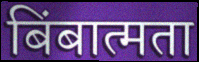
बिंबात्मता